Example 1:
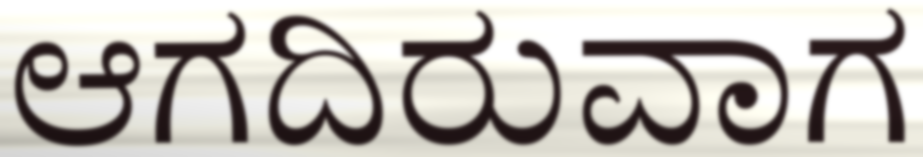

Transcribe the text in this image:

ಆಗದಿರುವಾಗ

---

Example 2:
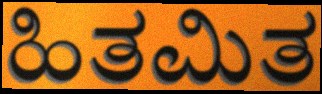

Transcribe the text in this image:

ಹಿತಮಿತ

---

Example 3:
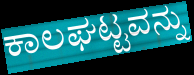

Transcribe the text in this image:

ಕಾಲಘಟ್ಟವನ್ನು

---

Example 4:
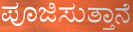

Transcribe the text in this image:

ಪೂಜಿಸುತ್ತಾನೆ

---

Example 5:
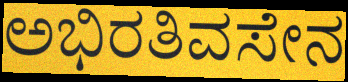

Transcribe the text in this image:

ಅಭಿರತಿವಸೇನ